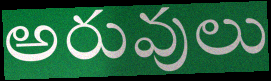
అరువులు